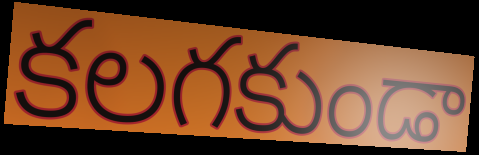
కలగకుండా